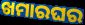
ଖମାରଘର